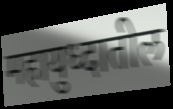
महायुध्दातील